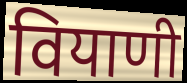
वियाणी